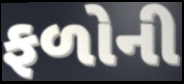
ફળોની